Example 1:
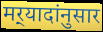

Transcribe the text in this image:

मर्यादांनुसार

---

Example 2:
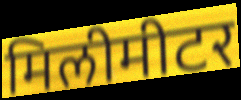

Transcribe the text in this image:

मिलीमीटर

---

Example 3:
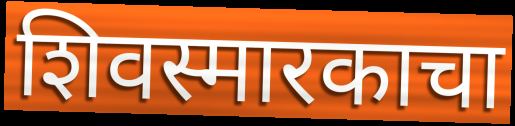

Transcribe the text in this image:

शिवस्मारकाचा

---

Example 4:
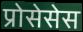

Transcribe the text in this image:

प्रोसेसेस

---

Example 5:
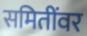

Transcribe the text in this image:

समितींवर